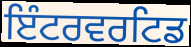
ਇੰਟਰਵਰਟਿਡ